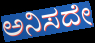
ಅನಿಸದೇ